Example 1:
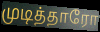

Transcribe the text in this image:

முடித்தாரோ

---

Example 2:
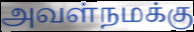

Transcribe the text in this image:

அவள்நமக்கு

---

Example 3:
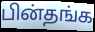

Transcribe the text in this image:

பின்தங்க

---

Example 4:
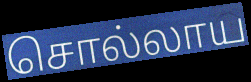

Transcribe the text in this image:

சொல்லாய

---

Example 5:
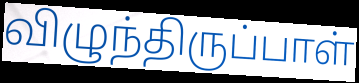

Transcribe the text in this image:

விழுந்திருப்பாள்